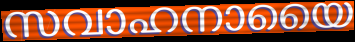
സവാഹനായൈ